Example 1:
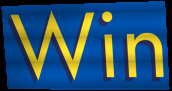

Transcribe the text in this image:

Win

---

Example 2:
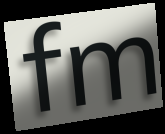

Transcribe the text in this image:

fm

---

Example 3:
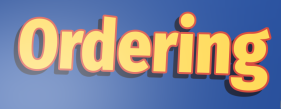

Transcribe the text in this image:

Ordering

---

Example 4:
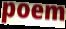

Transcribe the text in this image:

poem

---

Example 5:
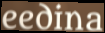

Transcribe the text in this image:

eedina